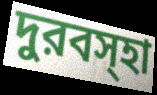
দুরবস্হা